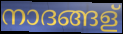
നാദങ്ങള്